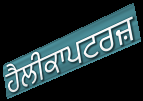
ਹੈਲੀਕਾਪਟਰਜ਼